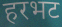
हरभट